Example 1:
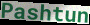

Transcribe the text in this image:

Pashtun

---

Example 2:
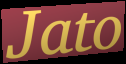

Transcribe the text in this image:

Jato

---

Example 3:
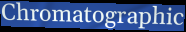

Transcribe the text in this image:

Chromatographic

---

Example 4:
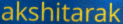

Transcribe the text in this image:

akshitarak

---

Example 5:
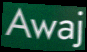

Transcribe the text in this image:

Awaj